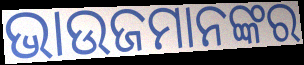
ଭାଉଜମାନଙ୍କର